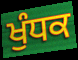
ਖੁੰਧਕ